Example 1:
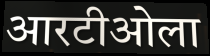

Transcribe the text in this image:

आरटीओला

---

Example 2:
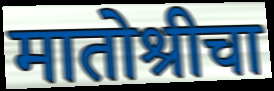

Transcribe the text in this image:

मातोश्रीचा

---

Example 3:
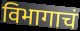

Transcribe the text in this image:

विभागाचं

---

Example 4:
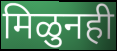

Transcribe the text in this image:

मिळुनही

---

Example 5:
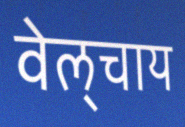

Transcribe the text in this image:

वेल्चाय